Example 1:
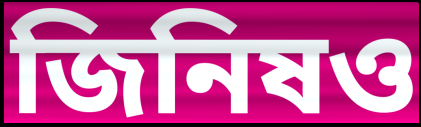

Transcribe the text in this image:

জিনিষও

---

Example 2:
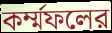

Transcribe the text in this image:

কর্ম্মফলের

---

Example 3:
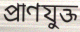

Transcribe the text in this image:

প্রাণযুক্ত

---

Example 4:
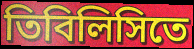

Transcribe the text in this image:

তিবিলিসিতে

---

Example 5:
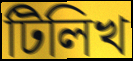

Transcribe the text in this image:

টিলিখ